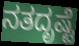
ನತದೃಷ್ಟೆ